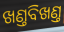
ଖଣ୍ତବିଖଣ୍ତ